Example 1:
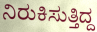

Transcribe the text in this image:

ನಿರುಕಿಸುತ್ತಿದ್ದ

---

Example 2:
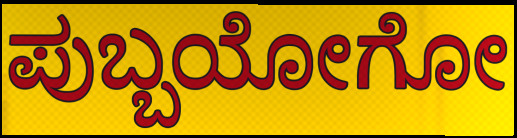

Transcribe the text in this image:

ಪುಬ್ಬಯೋಗೋ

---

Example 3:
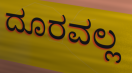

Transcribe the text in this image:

ದೂರವಲ್ಲ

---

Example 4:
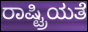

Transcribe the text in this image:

ರಾಷ್ಟ್ರಿಯತೆ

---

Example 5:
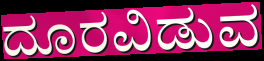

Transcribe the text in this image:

ದೂರವಿಡುವ